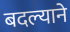
बदल्याने